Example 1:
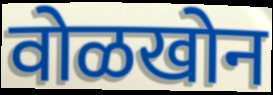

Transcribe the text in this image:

वोळखोन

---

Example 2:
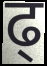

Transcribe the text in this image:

ढ्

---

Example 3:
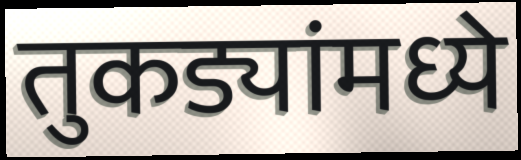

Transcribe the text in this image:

तुकड्यांमध्ये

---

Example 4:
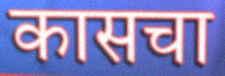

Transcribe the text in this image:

कासचा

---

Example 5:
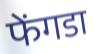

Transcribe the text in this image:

फेंगडा